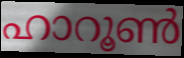
ഹാറൂൺ